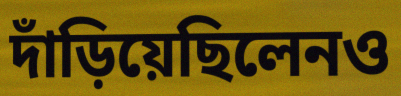
দাঁড়িয়েছিলেনও